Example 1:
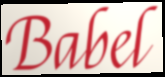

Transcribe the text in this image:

Babel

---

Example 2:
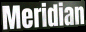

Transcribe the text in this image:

Meridian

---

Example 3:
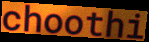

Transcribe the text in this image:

choothi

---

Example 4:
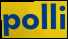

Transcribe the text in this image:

polli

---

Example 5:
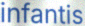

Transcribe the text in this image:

infantis